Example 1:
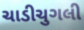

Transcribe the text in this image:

ચાડીચુગલી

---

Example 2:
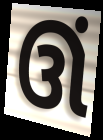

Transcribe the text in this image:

ઊં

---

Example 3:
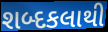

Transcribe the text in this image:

શબ્દકલાથી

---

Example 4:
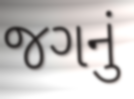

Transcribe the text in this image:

જગનું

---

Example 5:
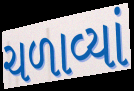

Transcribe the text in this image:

ચળાવ્યાં